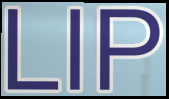
LIP